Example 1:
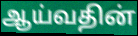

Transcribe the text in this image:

ஆய்வதின்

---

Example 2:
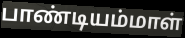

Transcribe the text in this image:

பாண்டியம்மாள்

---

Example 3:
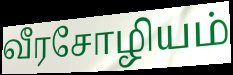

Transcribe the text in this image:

வீரசோழியம்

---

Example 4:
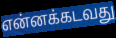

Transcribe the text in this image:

என்னக்கடவது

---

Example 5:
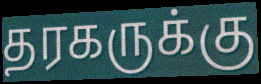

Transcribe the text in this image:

தரகருக்கு